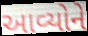
આવ્યોને